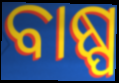
ବାଷ୍ପ